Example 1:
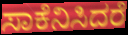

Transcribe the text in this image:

ಸಾಕೆನಿಸಿದರೆ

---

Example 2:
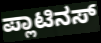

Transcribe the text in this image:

ಪ್ಲಾಟಿನಸ್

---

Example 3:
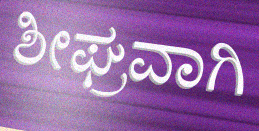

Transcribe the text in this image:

ಶೀಘ್ರವಾಗಿ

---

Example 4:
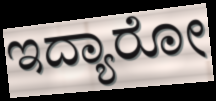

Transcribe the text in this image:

ಇದ್ಯಾರೋ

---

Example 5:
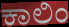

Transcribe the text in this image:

ಕಾಲಿಂ